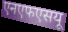
एनएफएसयू